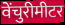
वेंचुरीमीटर